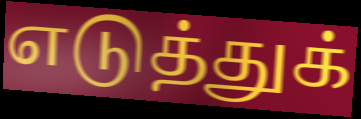
எடுத்துக்